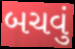
બચવું